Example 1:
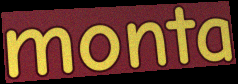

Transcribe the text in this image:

monta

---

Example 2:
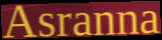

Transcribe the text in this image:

Asranna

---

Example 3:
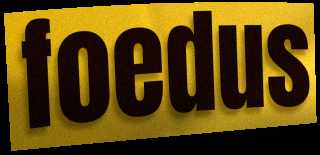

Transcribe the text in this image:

foedus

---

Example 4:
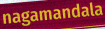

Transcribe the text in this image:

nagamandala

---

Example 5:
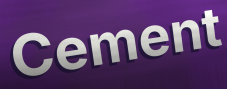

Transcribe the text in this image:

Cement